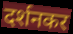
दर्शनकर